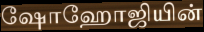
ஷோஹோஜியின்